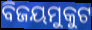
ବିଜୟମୁକୁଟ